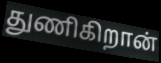
துணிகிறான்